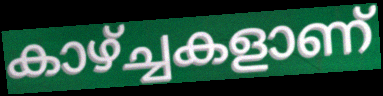
കാഴ്ച്ചകളാണ്